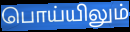
பொய்யிலும்